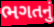
ભગતનું